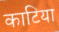
काटिया